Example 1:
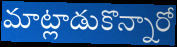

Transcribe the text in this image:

మాట్లాడుకొన్నారో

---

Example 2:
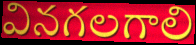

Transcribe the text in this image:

వినగలగాలి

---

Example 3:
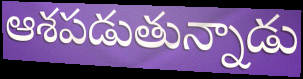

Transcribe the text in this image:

ఆశపడుతున్నాడు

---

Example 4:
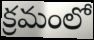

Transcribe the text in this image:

క్రమంలో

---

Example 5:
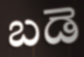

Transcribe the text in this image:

బడె